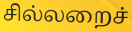
சில்லறைச்